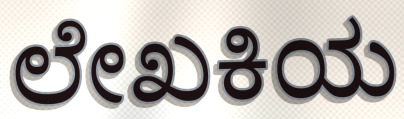
ಲೇಖಕಿಯ